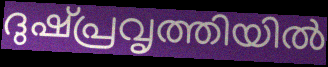
ദുഷ്പ്രവൃത്തിയിൽ